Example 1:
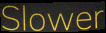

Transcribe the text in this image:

Slower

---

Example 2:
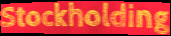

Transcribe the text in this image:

Stockholding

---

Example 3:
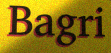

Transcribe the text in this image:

Bagri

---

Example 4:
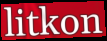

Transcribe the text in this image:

litkon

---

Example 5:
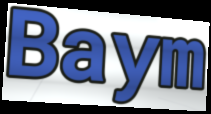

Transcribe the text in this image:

Baym